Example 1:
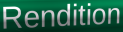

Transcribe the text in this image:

Rendition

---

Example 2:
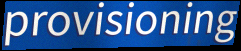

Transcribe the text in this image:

provisioning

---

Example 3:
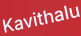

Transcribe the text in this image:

Kavithalu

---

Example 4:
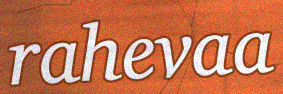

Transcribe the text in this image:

rahevaa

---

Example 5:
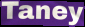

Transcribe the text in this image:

Taney